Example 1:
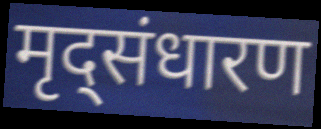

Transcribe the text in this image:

मृद्संधारण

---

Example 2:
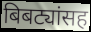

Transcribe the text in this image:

बिबट्यांसह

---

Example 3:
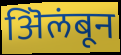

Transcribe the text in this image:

ऄिलंबून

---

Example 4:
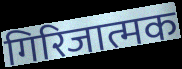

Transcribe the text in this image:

गिरिजात्मक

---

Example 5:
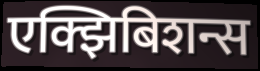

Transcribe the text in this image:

एक्झिबिशन्स